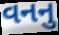
વનનુ